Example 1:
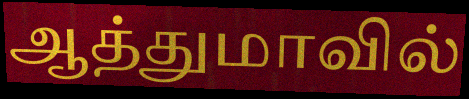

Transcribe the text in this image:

ஆத்துமாவில்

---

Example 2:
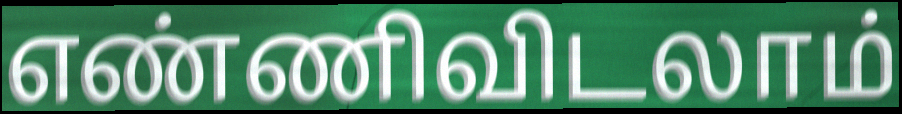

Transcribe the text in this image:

எண்ணிவிடலாம்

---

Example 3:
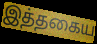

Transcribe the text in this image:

இத்தகைய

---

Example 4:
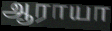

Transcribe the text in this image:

ஆராயா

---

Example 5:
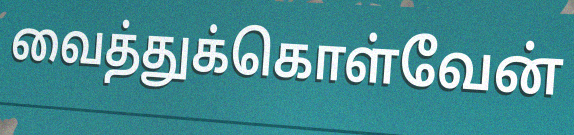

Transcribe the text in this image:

வைத்துக்கொள்வேன்